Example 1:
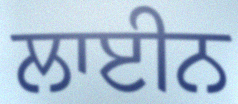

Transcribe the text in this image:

ਲਾਈਨ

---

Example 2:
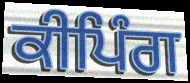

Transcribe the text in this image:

ਕੀਪਿੰਗ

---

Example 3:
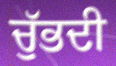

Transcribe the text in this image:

ਚੁੱਭਦੀ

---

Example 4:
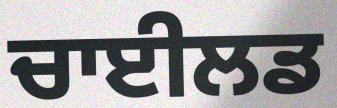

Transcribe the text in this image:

ਚਾਈਲਡ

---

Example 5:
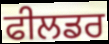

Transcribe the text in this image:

ਫੀਲਡਰ